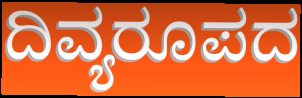
ದಿವ್ಯರೂಪದ